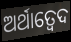
ଅର୍ଥାତ୍ବେଦ